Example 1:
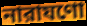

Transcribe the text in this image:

নারাযণো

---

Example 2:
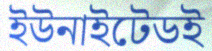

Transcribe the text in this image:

ইউনাইটেডই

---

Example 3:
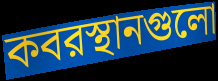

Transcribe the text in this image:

কবরস্থানগুলো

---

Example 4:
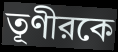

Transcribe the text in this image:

তূণীরকে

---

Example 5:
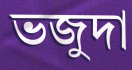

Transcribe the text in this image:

ভজুদা